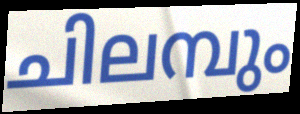
ചിലമ്പും